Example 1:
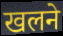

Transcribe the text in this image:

खलने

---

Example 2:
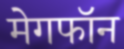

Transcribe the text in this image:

मेगफॉन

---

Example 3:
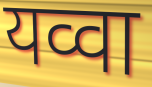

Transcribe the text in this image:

यव्वा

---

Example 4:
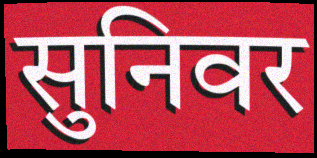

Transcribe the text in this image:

सुनिवर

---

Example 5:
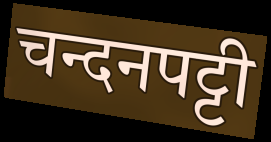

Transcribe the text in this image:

चन्दनपट्टी